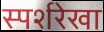
स्पर्शरेखा